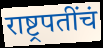
राष्ट्रपतींचं